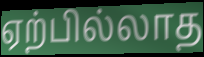
ஏற்பில்லாத